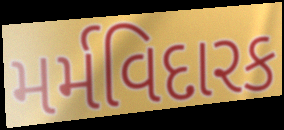
મર્મવિદારક